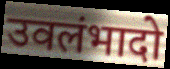
उवलंभादो